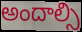
అందాల్సి